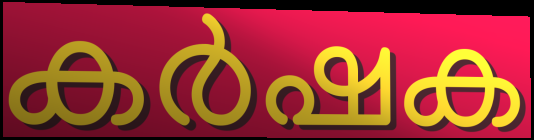
കർഷക